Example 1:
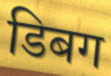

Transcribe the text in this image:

डिबग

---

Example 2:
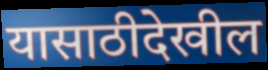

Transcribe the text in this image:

यासाठीदेखील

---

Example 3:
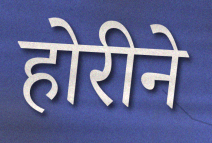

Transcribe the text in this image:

होरीने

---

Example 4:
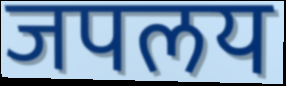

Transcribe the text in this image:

जपलय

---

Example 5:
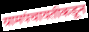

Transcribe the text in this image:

ग्रामपंचायतीकडून